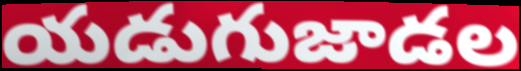
యడుగుజాడల